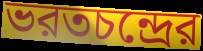
ভরতচন্দ্রের